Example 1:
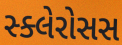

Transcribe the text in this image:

સ્ક્લેરોસસ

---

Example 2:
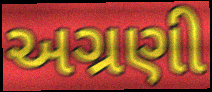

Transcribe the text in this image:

અગ્રણી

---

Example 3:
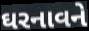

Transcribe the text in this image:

ઘરનાવને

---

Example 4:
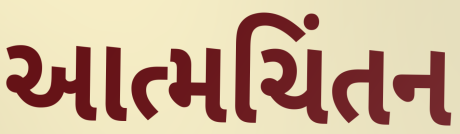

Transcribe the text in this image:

આત્મચિંતન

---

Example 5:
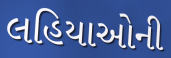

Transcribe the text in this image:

લહિયાઓની